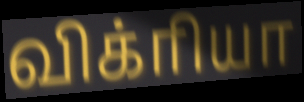
விக்ரியா